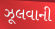
ઝૂલવાની